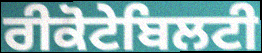
ਰੀਕੋਟੇਬਿਲਟੀ